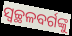
ସ୍ବଚ୍ଛଳବର୍ଗଙ୍କୁ